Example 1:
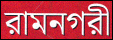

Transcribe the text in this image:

রামনগরী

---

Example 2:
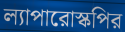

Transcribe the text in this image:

ল্যাপারোস্কপির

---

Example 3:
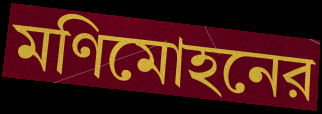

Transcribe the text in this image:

মণিমোহনের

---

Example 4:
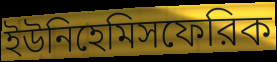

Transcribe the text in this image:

ইউনিহেমিসফেরিক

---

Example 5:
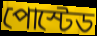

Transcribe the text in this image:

পোস্টেড